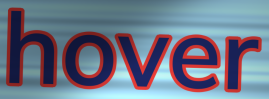
hover